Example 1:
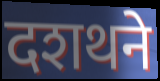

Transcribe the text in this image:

दशथने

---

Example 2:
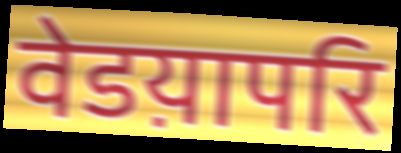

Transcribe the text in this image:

वेडय़ापरि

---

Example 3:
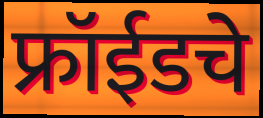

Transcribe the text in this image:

फ्रॉईडचे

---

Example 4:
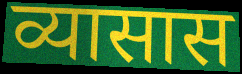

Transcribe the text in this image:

व्यासास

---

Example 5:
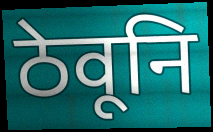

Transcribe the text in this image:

ठेवूनि